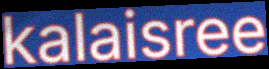
kalaisree